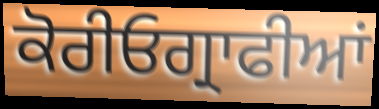
ਕੋਰੀਓਗ੍ਰਾਫੀਆਂ